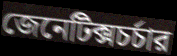
জেনেটিক্সচর্চার